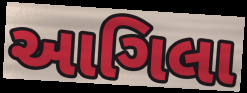
આગિલા